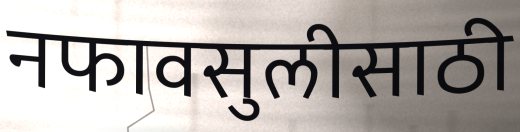
नफावसुलीसाठी